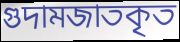
গুদামজাতকৃত